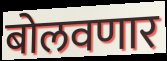
बोलवणार